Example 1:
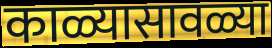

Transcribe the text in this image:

काळ्यासावळ्या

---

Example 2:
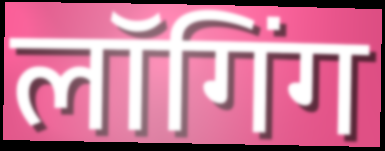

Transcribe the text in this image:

लॉगिंग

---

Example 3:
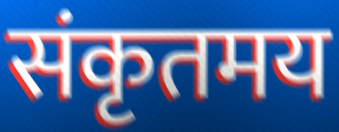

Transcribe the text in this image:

संकृतमय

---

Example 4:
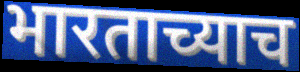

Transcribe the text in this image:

भारताच्याच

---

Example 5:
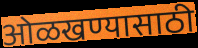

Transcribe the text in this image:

ओळखण्यासाठी